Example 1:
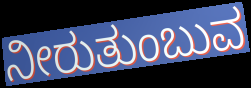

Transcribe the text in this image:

ನೀರುತುಂಬುವ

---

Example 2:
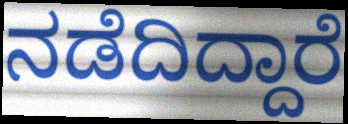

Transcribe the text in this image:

ನಡೆದಿದ್ದಾರೆ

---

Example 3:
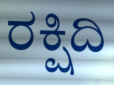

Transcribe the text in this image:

ರಕ್ಷಿದಿ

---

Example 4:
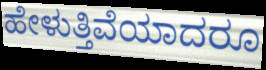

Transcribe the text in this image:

ಹೇಳುತ್ತಿವೆಯಾದರೂ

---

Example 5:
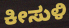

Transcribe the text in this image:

ಕೀಸುಳಿ